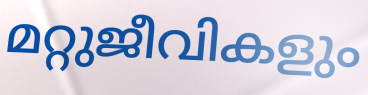
മറ്റുജീവികളും